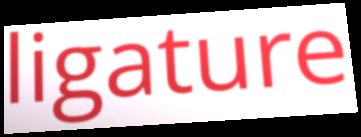
ligature